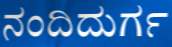
ನಂದಿದುರ್ಗ